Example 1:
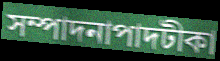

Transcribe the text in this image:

সম্পাদনাপাদটীকা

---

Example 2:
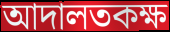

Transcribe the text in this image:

আদালতকক্ষ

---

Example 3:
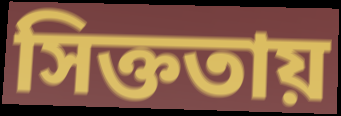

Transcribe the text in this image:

সিক্ততায়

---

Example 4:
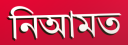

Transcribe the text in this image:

নিআমত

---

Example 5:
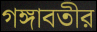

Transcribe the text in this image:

গঙ্গাবতীর